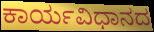
ಕಾರ್ಯವಿಧಾನದ